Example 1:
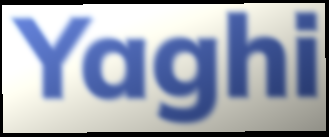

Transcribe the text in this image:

Yaghi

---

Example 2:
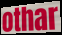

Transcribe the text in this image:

othar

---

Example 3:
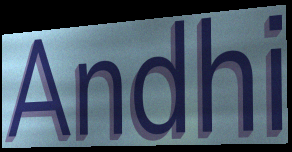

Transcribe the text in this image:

Andhi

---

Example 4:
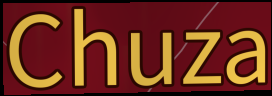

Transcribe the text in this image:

Chuza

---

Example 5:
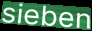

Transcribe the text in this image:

sieben